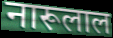
नारूलाल